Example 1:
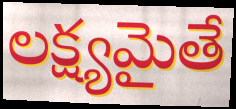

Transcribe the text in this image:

లక్ష్యమైతే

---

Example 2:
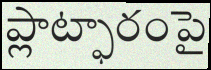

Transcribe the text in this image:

ప్లాట్ఫారంపై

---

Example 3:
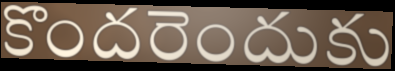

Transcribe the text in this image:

కొందరెందుకు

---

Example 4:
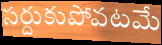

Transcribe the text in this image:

సర్దుకుపోవటమే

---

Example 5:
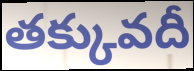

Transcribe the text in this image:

తక్కువదీ